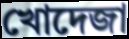
খোদেজা